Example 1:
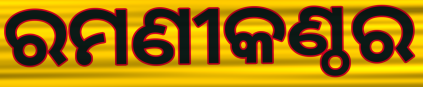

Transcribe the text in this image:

ରମଣୀକଣ୍ଠର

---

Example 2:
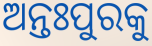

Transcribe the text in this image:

ଅନ୍ତଃପୁରକୁ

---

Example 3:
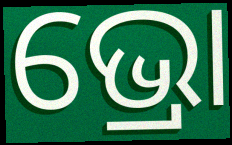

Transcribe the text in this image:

ଭ୍ରୋ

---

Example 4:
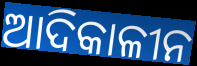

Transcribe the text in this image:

ଆଦିକାଳୀନ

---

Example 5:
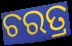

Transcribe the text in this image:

ଚରତ୍ର